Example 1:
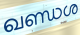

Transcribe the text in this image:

ഖണ്ഡശ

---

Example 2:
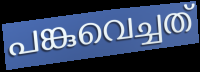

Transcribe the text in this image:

പങ്കുവെച്ചത്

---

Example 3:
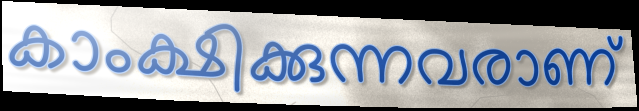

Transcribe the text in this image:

കാംക്ഷിക്കുന്നവരാണ്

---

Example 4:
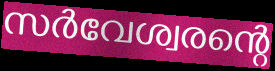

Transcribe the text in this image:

സർവേശ്വരന്റെ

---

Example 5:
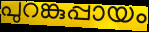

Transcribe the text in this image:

പുറങ്കുപ്പായം